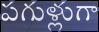
పగుళ్లుగా